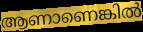
ആണാണെങ്കിൽ